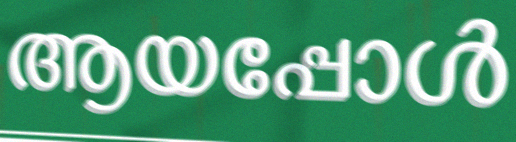
ആയപ്പോൾ